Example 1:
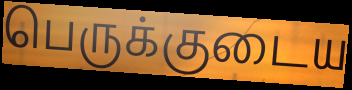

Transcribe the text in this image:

பெருக்குடைய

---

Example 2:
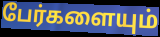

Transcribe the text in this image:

பேர்களையும்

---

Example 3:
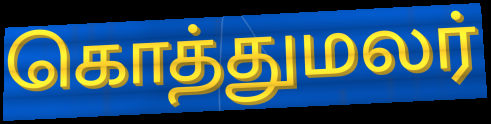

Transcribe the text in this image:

கொத்துமலர்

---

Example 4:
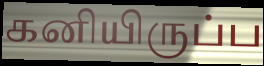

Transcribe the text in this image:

கனியிருப்ப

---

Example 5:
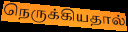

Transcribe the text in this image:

நெருக்கியதால்